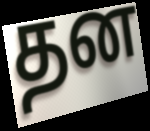
தன